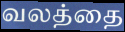
வலத்தை